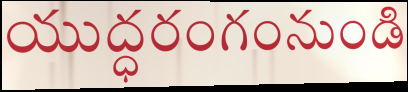
యుద్ధరంగంనుండి